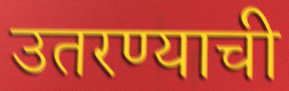
उतरण्याची